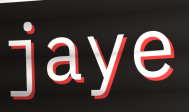
jaye